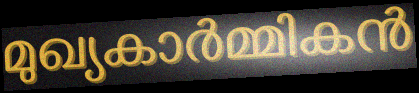
മുഖ്യകാർമ്മികൻ